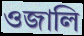
ওজালি